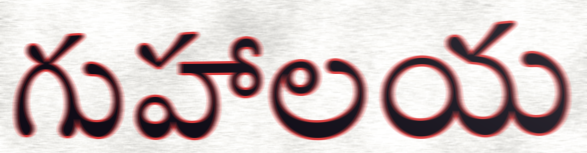
గుహాలయ